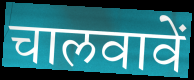
चालवावें